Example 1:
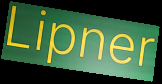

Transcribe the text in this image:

Lipner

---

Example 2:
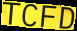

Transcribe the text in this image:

TCFD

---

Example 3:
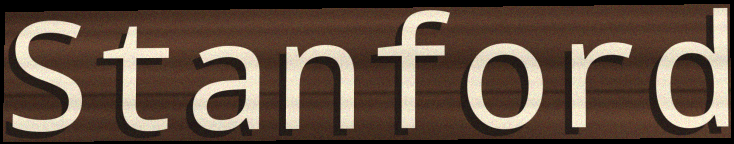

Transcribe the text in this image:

Stanford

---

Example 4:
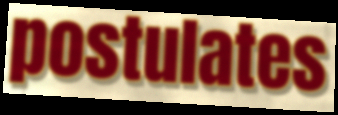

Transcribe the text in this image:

postulates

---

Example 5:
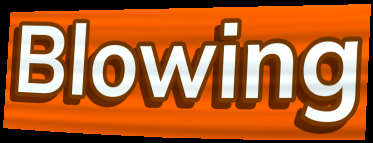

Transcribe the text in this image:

Blowing